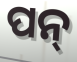
ପନ୍